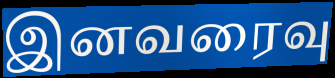
இனவரைவு